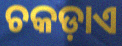
ଚକଡ଼ାଏ